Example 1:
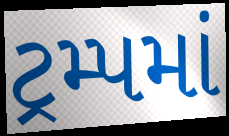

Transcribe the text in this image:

ટ્રમ્પમાં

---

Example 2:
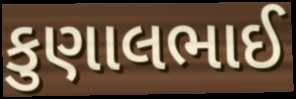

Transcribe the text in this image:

કુણાલભાઈ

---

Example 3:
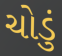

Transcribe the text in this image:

ચોડું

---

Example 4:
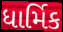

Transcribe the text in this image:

ધાર્મિક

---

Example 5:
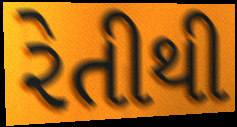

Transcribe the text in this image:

રેતીથી